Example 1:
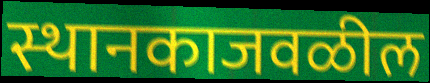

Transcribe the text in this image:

स्थानकाजवळील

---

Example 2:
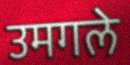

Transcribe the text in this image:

उमगले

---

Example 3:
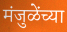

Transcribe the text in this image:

मंजुळेंच्या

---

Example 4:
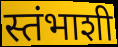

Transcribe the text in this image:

स्तंभाशी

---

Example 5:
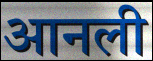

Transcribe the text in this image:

आनली